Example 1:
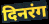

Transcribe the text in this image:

दिनरंग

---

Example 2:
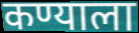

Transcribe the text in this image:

कण्याला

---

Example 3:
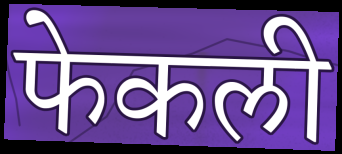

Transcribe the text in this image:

फेकली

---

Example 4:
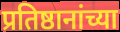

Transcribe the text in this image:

प्रतिष्ठानांच्या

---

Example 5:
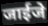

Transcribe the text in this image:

जाईजे